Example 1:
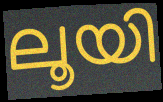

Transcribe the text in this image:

ലൂയി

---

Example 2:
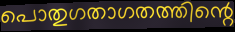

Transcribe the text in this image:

പൊതുഗതാഗതത്തിന്റെ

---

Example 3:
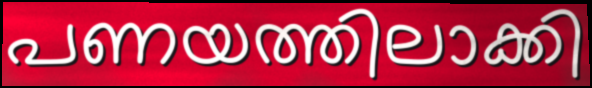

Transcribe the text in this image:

പണയത്തിലാക്കി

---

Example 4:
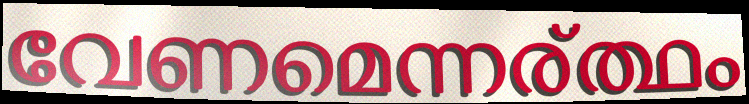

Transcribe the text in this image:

വേണമെന്നര്ത്ഥം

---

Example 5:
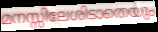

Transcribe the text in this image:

മനസ്സിലേശിടാതെയും